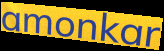
amonkar